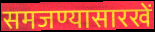
समजण्यासारखें